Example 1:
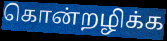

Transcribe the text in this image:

கொன்றழிக்க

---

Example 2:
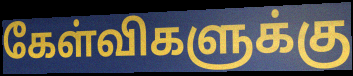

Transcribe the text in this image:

கேள்விகளுக்கு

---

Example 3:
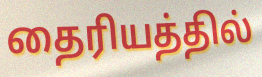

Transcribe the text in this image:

தைரியத்தில்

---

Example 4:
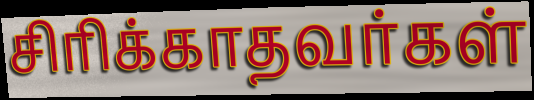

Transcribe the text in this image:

சிரிக்காதவர்கள்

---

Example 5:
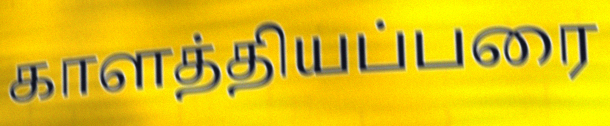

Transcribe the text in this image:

காளத்தியப்பரை